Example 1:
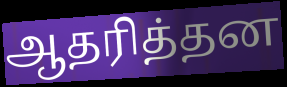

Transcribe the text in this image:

ஆதரித்தன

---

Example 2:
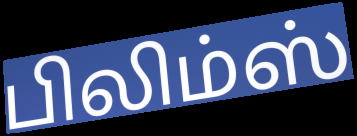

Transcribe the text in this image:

பிலிம்ஸ்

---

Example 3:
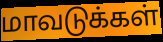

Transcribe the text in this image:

மாவடுக்கள்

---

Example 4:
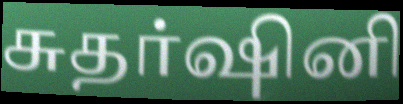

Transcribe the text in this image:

சுதர்ஷினி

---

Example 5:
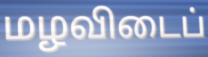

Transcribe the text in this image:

மழவிடைப்